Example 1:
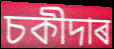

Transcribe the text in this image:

চকীদাৰ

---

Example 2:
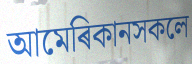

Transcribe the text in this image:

আমেৰিকানসকলে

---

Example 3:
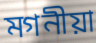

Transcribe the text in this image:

মগনীয়া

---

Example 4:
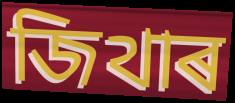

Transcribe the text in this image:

জিথাৰ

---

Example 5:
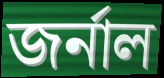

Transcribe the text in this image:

জৰ্নাল